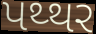
પથ્થર